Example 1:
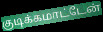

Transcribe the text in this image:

குடிக்கமாட்டேன்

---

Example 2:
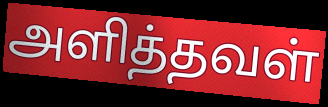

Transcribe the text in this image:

அளித்தவள்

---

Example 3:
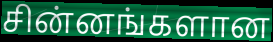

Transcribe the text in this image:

சின்னங்களான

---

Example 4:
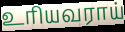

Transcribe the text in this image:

உரியவராய்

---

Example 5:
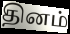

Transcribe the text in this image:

தினம்